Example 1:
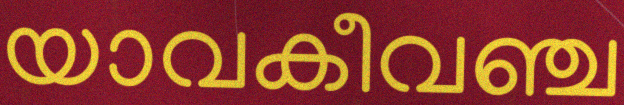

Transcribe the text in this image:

യാവകീവഞ്ച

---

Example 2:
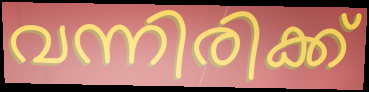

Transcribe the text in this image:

വന്നിരിക്ക്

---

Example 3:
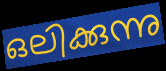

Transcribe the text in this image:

ഒലിക്കുന്നു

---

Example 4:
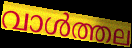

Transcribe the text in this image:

വാൾത്തല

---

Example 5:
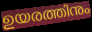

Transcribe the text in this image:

ഉയരത്തിനും